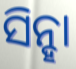
ସିନ୍ହା